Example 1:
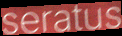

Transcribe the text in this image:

seratus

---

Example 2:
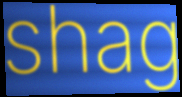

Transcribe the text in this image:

shag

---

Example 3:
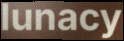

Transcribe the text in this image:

lunacy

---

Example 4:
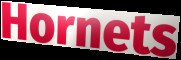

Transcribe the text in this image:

Hornets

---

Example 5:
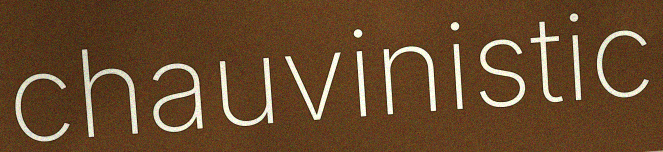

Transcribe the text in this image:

chauvinistic